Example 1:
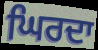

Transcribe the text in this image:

ਘਿਰਦਾ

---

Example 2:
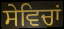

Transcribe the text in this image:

ਸੇਵਿਚਾਂ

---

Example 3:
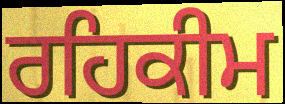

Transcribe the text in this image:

ਰਹਿਕੀਮ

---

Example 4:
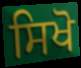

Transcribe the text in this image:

ਸਿਖੋ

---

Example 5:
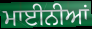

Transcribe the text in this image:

ਮਾਈਨੀਆਂ